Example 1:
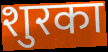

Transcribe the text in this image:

शुरका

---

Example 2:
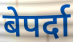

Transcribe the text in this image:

बेपर्दा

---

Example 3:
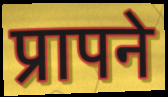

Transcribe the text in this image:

प्रापने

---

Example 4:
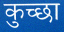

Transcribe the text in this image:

कुच्छा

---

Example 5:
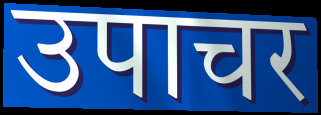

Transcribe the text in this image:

उपाचर